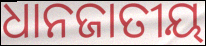
ଧାନଜାତୀୟ